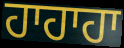
ਹਾਹਾਹਾ